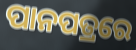
ପାନପତ୍ରରେ